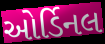
ઓર્ડિનલ